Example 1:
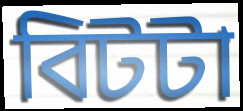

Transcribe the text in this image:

বিটটা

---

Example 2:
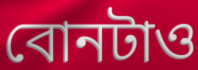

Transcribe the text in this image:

বোনটাও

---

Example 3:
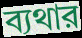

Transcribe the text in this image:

ব্যথার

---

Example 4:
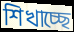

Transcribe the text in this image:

শিখাচ্ছে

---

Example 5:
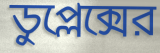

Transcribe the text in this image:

ডুপ্লেক্সের